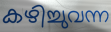
കഴിച്ചുവന്ന